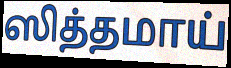
ஸித்தமாய்